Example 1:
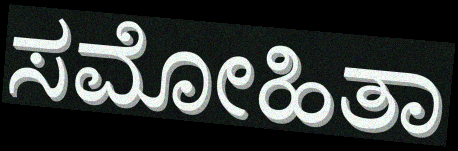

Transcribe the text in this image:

ಸಮೋಹಿತಾ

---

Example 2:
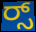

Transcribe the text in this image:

ರ್‍ಸ್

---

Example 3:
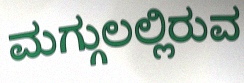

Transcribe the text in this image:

ಮಗ್ಗುಲಲ್ಲಿರುವ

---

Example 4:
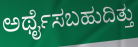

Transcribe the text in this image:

ಅರ್ಥೈಸಬಹುದಿತ್ತು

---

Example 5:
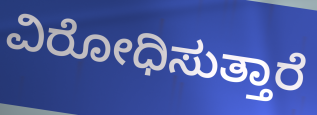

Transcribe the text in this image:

ವಿರೋಧಿಸುತ್ತಾರೆ